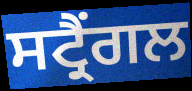
ਸਟ੍ਰੈਂਗਲ